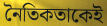
নৈতিকতাকেই